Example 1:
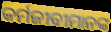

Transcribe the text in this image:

କର୍ମଜୀବୀମାନଙ୍କ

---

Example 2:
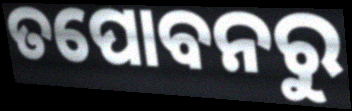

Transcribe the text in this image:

ତପୋବନରୁ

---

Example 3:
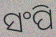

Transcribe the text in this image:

ସଂପି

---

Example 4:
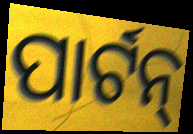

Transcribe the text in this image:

ପାର୍ଟନ୍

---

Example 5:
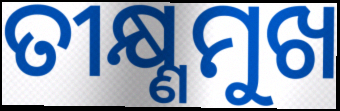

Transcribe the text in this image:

ତୀକ୍ଷ୍ଣମୁଖ